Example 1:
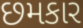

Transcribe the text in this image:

છમકાર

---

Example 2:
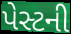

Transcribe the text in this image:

પેસ્ટની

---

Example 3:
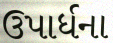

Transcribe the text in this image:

ઉપાર્ધના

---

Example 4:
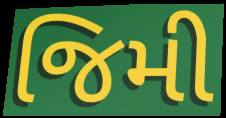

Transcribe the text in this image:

જિમી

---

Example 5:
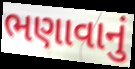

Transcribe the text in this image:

ભણાવાનું